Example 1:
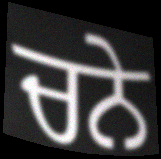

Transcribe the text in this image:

ਚਨੇ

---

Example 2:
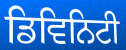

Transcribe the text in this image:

ਡਿਵਿਨਿਟੀ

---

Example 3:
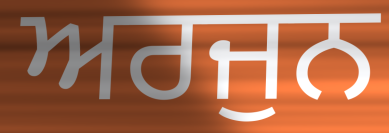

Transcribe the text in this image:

ਅਰਜੁਨ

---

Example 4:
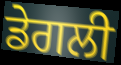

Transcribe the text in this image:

ਡੇਗਲੀ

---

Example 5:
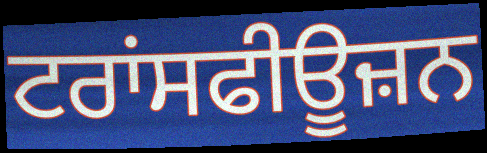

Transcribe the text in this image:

ਟਰਾਂਸਫੀਊਜ਼ਨ